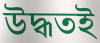
উদ্ধতই